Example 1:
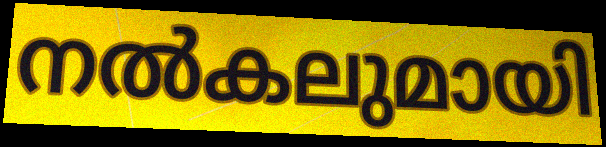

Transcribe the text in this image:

നൽകലുമായി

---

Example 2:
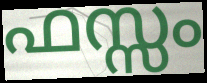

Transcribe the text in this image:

ഫസ്സം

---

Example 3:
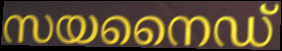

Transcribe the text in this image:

സയനൈഡ്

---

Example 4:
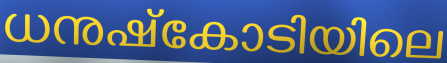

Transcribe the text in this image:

ധനുഷ്‌കോടിയിലെ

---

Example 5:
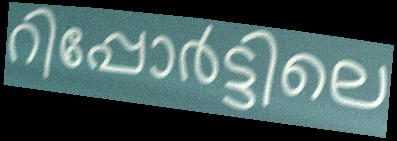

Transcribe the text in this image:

റിപ്പോർട്ടിലെ